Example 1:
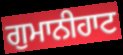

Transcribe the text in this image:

ਗੁਮਾਨੀਹਾਟ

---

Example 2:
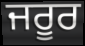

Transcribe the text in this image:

ਜਰੂਰ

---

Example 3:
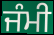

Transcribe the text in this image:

ਜੰਮੀ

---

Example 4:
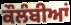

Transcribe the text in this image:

ਕੌਲੰਬੀਆਂ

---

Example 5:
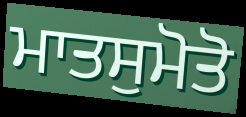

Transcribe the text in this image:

ਮਾਤਸੁਮੋਤੋ